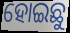
ହୋଇଛୁ